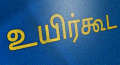
உயிர்கூட